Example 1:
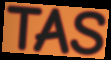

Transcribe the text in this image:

TAS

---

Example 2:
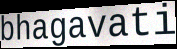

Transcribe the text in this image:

bhagavati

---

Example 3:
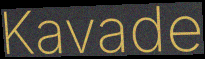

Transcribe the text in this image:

Kavade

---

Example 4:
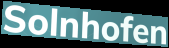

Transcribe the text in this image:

Solnhofen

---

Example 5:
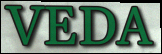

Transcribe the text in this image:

VEDA